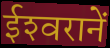
ईश्वरानें